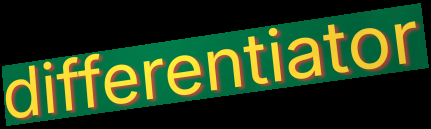
differentiator